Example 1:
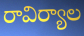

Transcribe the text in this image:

రావిర్యాల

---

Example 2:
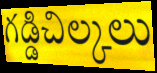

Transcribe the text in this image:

గడ్డిచిల్కలు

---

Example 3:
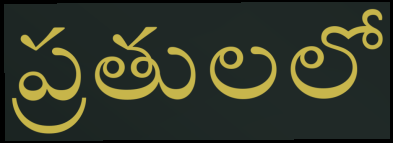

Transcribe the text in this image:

ప్రతులలో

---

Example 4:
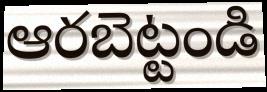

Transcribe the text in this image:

ఆరబెట్టండి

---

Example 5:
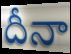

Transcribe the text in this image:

దీనా